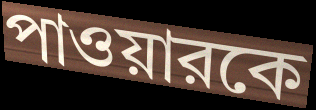
পাওয়ারকে